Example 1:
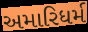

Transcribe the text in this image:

અમારિધર્મ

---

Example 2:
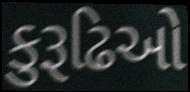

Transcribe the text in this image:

કુરૂઢિઓ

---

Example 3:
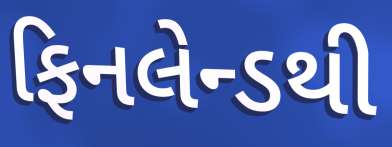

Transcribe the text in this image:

ફિનલેન્ડથી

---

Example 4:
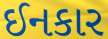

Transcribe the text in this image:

ઈનકાર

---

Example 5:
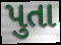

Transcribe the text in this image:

પુતા